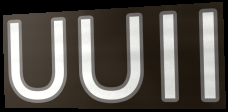
UUII